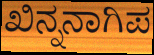
ಖಿನ್ನನಾಗಿಪ